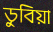
ডুবিয়া